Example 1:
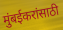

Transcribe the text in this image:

मुंबईकरांसाठी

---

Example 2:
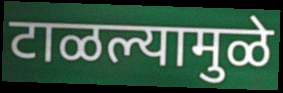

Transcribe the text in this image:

टाळल्यामुळे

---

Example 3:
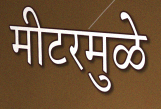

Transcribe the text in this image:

मीटरमुळे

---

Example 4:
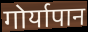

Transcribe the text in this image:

गोर्यापान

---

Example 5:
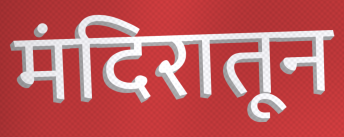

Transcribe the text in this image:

मंदिरातून